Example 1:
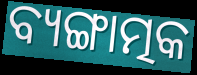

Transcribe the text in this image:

ବ୍ୟଙ୍ଗାତ୍ମକ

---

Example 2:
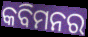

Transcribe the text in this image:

କବିମନର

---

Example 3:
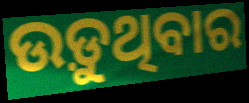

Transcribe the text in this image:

ଉଡ଼ୁଥିବାର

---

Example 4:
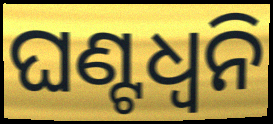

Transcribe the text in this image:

ଘଣ୍ଟଧ୍ୱନି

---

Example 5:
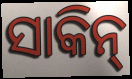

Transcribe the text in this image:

ସାକିନ୍